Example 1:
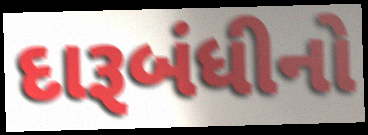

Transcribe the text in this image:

દારૂબંધીનો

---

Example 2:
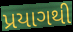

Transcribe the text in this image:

પ્રયાગથી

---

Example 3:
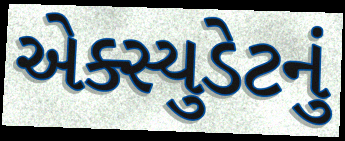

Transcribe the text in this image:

એક્સ્યુડેટનું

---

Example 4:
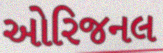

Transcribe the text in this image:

ઓરિજનલ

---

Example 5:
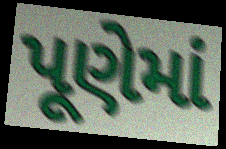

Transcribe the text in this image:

પૂણેમાં